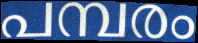
പമ്പരം